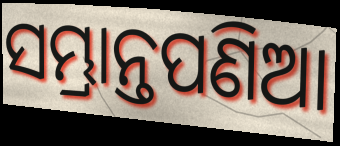
ସମ୍ଭ୍ରାନ୍ତପଣିଆ